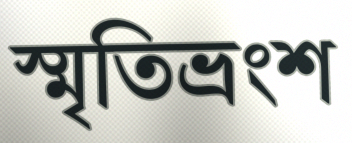
স্মৃতিভ্রংশ